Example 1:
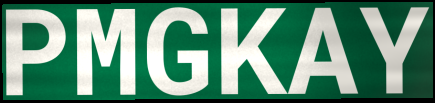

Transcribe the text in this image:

PMGKAY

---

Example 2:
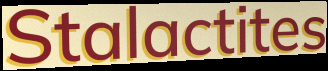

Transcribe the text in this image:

Stalactites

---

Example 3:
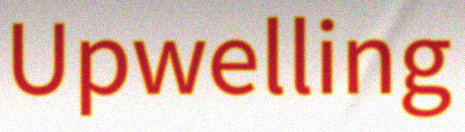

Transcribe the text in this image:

Upwelling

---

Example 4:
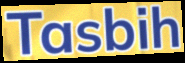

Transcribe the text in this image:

Tasbih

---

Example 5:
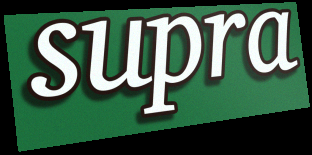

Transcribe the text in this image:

supra